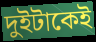
দুইটাকেই